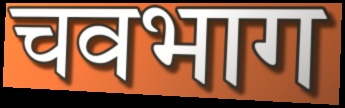
चवभाग